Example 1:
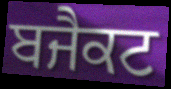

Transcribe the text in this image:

ਬਜੈਕਟ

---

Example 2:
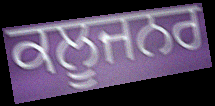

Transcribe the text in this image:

ਕਲੂਜਨਰ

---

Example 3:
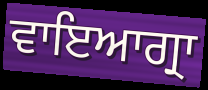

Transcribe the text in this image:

ਵਾਇਆਗ੍ਰਾ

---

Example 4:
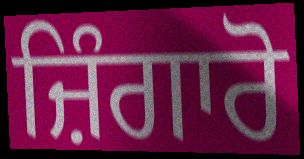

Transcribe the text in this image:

ਜ਼ਿੰਗਾਰੋ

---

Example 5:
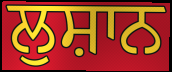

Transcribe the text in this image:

ਲੁਸ਼ਾਨ